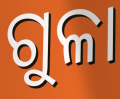
ଗୁଳା